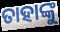
ତାହାଙ୍କୁ